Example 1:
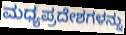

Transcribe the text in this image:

ಮಧ್ಯಪ್ರದೇಶಗಳನ್ನು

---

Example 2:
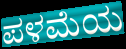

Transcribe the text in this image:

ಪಳಮೆಯ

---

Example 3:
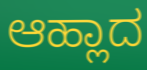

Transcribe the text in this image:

ಆಹ್ಲಾದ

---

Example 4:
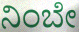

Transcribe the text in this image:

ನಿಂಬೇ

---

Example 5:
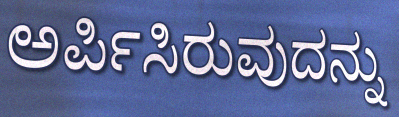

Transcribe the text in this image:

ಅರ್ಪಿಸಿರುವುದನ್ನು